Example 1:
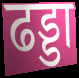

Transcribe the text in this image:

ढड्डा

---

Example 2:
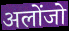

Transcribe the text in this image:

अलोंजो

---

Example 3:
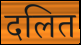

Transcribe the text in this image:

दलित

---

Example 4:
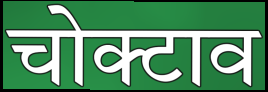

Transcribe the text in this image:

चोक्टाव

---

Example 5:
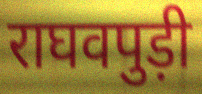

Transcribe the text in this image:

राघवपुड़ी